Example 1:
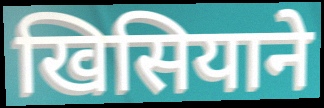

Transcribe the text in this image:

खिसियाने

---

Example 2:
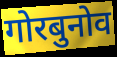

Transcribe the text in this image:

गोरबुनोव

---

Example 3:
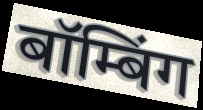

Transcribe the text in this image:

बॉम्बिंग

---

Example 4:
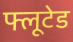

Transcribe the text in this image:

फ्लूटेड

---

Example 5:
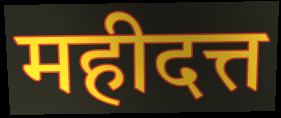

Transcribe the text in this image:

महीदत्त